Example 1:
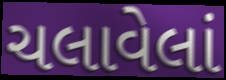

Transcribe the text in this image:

ચલાવેલાં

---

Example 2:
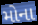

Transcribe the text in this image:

મોના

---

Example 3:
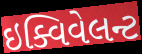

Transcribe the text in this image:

ઇક્વિવેલન્ટ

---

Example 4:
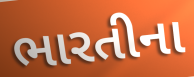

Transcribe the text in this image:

ભારતીના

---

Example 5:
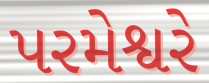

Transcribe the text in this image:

પરમેશ્વરે